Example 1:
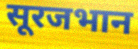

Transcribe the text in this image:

सूरजभान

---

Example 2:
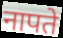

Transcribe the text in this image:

नापते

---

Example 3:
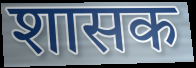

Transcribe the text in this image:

शासक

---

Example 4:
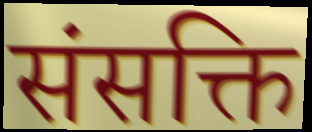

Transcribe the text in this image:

संसक्ति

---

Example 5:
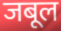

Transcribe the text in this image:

जबूल